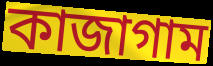
কাজাগাম